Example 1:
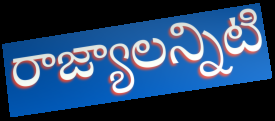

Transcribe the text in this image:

రాజ్యాలన్నిటి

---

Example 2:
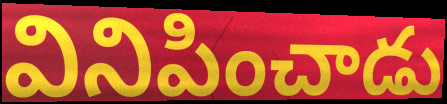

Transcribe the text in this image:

వినిపించాడు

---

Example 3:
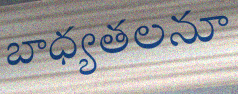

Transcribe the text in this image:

బాధ్యతలనూ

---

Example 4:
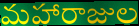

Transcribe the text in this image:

మహారాజుల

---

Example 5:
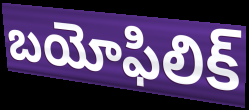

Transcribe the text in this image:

బయోఫిలిక్